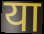
या